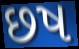
છષ